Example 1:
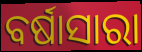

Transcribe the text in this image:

ବର୍ଷାସାରା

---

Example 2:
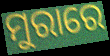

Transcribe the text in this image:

ମୁରାରେ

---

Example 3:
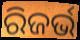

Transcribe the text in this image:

ରିଜର୍ଭ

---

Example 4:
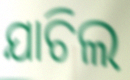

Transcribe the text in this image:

ଯାଚିଲ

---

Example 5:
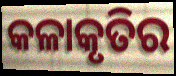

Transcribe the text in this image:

କଳାକୃତିର